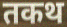
तकथ